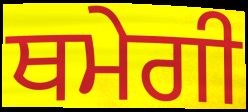
ਥਮੇਗੀ